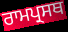
ਰਾਮਪ੍ਰਸਥ